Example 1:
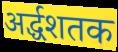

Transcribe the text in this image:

अर्द्धशतक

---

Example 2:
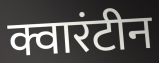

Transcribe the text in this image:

क्वारंटीन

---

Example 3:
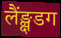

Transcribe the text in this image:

लैंङ्क्षडग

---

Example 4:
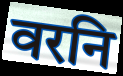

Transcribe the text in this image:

वरनि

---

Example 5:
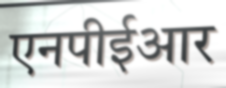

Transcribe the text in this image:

एनपीईआर